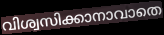
വിശ്വസിക്കാനാവാതെ